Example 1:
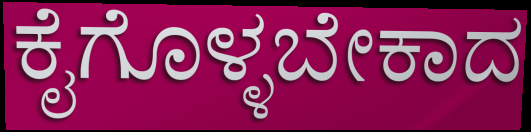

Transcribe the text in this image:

ಕೈಗೊಳ್ಳಬೇಕಾದ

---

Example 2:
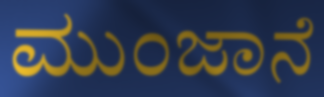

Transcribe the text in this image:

ಮುಂಜಾನೆ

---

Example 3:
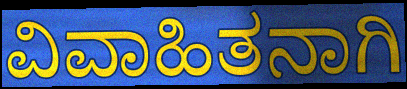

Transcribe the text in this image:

ವಿವಾಹಿತನಾಗಿ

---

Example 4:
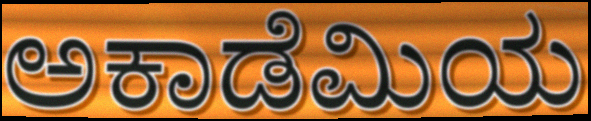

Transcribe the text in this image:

ಅಕಾಡೆಮಿಯ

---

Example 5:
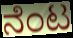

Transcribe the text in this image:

ನೆಂಟ